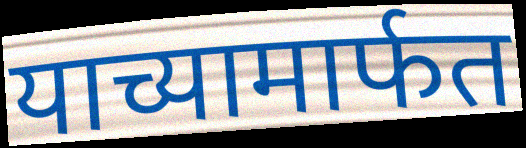
याच्यामार्फत